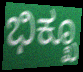
ಭಿಕ್ಖೂ